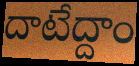
దాటేద్దాం